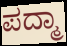
ಪದ್ಮಾ